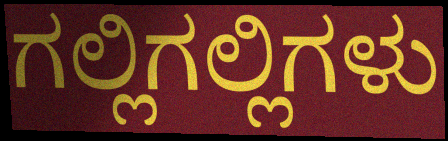
ಗಲ್ಲಿಗಲ್ಲಿಗಳು